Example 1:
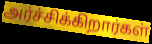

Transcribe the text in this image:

அர்ச்சிக்கிறார்கள்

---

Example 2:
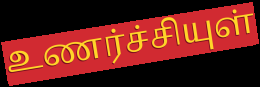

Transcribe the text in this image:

உணர்ச்சியுள்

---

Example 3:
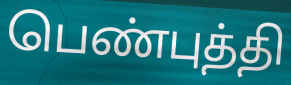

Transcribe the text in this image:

பெண்புத்தி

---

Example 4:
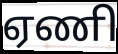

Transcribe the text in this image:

ஏணி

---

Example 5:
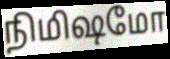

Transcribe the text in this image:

நிமிஷமோ